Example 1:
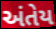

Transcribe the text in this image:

અંતેય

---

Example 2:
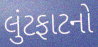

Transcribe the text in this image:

લુંટફાટનો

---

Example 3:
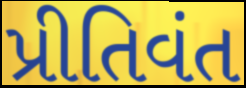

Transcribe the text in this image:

પ્રીતિવંત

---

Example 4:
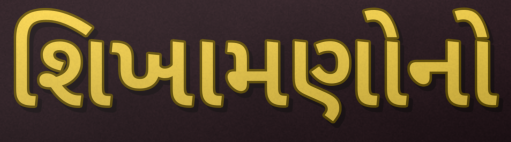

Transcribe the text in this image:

શિખામણોનો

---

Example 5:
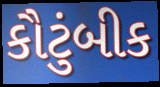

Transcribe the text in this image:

કૌટુંબીક